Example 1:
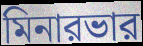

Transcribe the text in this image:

মিনারভার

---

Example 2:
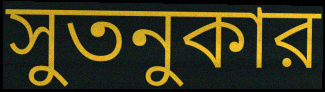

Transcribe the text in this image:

সুতনুকার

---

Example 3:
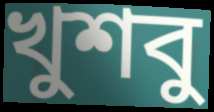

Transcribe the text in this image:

খুশবু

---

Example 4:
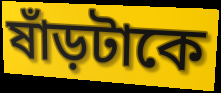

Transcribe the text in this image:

ষাঁড়টাকে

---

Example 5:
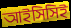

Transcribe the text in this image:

আইসিসিই